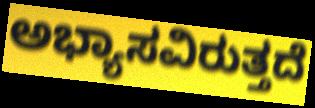
ಅಭ್ಯಾಸವಿರುತ್ತದೆ